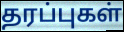
தரப்புகள்